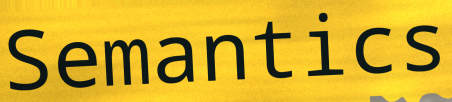
Semantics